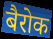
बैरोक